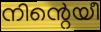
നിന്റെയീ